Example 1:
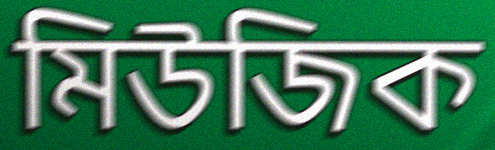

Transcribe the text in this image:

মিউজিক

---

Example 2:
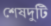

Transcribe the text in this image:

শেষদুটি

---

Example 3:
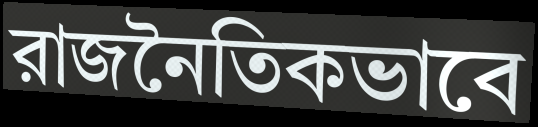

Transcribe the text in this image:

রাজনৈতিকভাবে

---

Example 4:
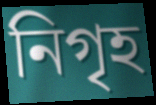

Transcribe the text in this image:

নিগৃহ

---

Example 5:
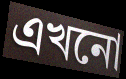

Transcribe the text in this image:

এখনো